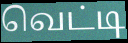
வெட்டி